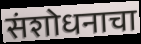
संशोधनाचा